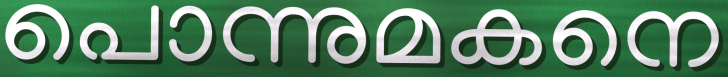
പൊന്നുമകനെ